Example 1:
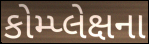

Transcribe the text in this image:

કોમ્પ્લેક્ષના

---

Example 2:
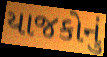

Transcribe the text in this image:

યાજકોનું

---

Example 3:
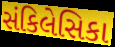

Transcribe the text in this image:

સંકિલેસિકા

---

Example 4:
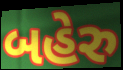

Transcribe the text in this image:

બહેરુ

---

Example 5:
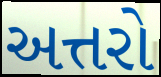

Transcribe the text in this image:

અત્તરો